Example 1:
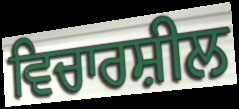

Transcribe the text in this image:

ਵਿਚਾਰਸ਼ੀਲ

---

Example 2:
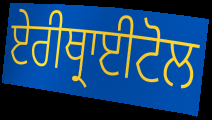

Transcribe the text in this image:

ਏਰੀਥ੍ਰਾਈਟੋਲ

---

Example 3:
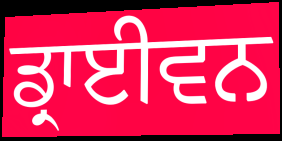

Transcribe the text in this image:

ਡ੍ਰਾਈਵਨ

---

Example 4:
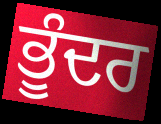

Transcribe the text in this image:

ਭੂੰਦਰ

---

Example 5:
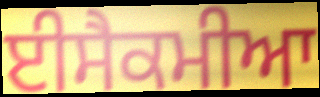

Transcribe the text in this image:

ਈਸੈਕਮੀਆ